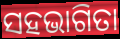
ସହଭାଗିତା